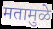
मतामुळे